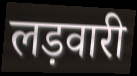
लड़वारी